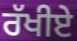
ਰੱਖੀਏ